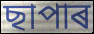
ছাপাৰ